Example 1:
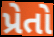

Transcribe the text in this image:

પ્રેતો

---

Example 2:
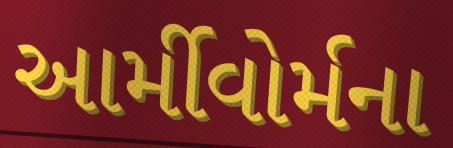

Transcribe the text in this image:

આર્મીવોર્મના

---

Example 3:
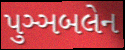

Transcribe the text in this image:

પુઞ્ઞબલેન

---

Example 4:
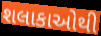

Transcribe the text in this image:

શલાકાઓથી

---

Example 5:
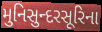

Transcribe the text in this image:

મુનિસુન્દરસૂરિના